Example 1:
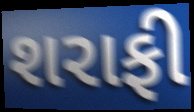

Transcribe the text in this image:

શરાફી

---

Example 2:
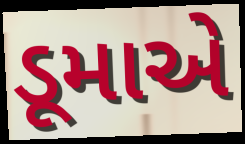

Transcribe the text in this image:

ડૂમાએ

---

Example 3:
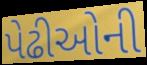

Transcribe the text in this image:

પેઢીઓની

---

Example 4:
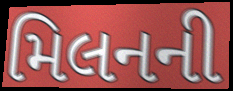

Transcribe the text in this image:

મિલનની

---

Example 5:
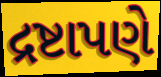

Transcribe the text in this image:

દ્રષ્ટાપણે